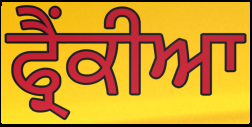
ਫ੍ਰੈਂਕੀਆ